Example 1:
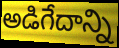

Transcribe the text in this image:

అడిగేదాన్ని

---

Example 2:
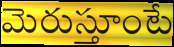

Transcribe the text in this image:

మెరుస్తూంటే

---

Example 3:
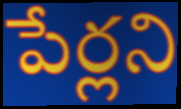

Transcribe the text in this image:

పేర్లని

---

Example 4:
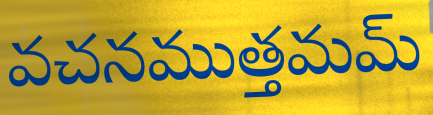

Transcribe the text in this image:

వచనముత్తమమ్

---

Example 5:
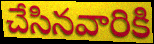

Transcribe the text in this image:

చేసినవారికి